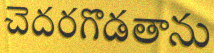
చెదరగొడతాను